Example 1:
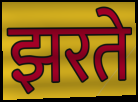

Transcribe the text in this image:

झरते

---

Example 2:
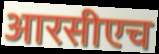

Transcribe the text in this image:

आरसीएच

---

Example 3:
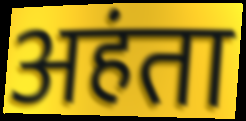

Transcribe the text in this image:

अहंता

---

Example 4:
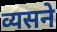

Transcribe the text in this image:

व्यसने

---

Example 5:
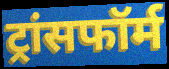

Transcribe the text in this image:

ट्रांसफॉर्म